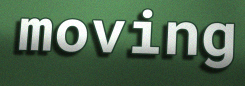
moving